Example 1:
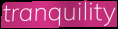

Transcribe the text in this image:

tranquility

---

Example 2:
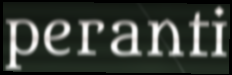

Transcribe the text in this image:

peranti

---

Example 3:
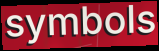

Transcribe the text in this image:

symbols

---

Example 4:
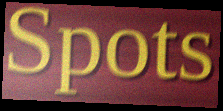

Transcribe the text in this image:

Spots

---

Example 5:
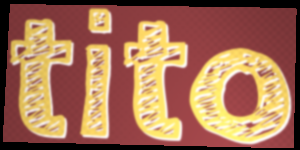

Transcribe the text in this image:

tito